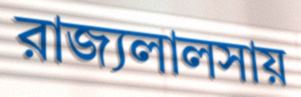
রাজ্যলালসায়